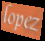
lopez